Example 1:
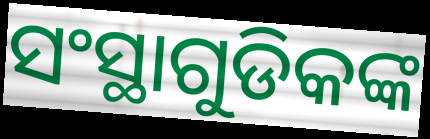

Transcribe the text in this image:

ସଂସ୍ଥାଗୁଡିକଙ୍କ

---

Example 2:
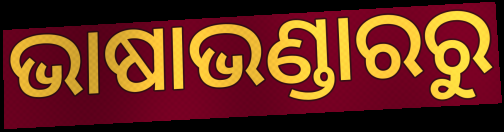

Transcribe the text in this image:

ଭାଷାଭଣ୍ଡାରରୁ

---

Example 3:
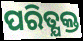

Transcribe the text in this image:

ପରିତ୍ଯକ୍ତ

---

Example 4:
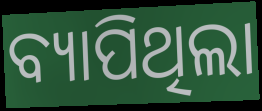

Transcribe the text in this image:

ବ୍ୟାପିଥିଲା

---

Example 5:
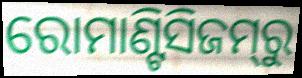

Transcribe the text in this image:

ରୋମାଣ୍ଟିସିଜମ୍‌ରୁ